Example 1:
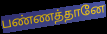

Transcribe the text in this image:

பண்ணத்தானே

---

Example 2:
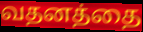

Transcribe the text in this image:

வதனத்தை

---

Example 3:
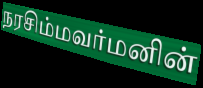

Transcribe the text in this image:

நரசிம்மவர்மனின்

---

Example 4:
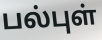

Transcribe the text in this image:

பல்புள்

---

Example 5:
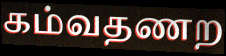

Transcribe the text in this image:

கம்வதணற